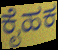
ಕೈಹಕ